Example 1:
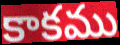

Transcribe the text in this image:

కాకము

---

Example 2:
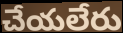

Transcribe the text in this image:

చేయలేరు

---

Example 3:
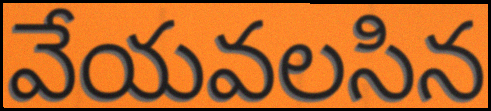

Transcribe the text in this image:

వేయవలసిన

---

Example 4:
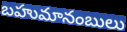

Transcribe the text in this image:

బహుమానంబులు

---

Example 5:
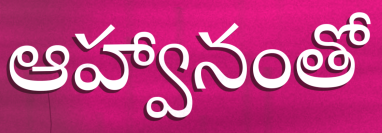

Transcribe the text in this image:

ఆహ్వానంతో